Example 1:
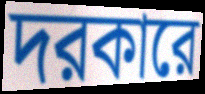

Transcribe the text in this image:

দরকারে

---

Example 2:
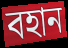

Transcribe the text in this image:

বহান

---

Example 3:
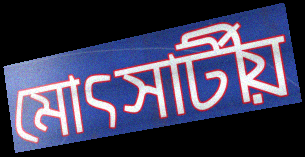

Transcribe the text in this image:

মোৎসার্টীয়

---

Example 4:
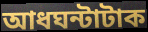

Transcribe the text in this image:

আধঘন্টাটাক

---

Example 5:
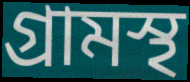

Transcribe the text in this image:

গ্রামস্থ